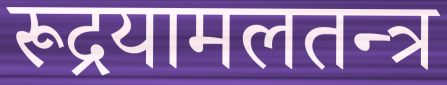
रूद्रयामलतन्त्र